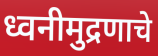
ध्वनीमुद्रणाचे